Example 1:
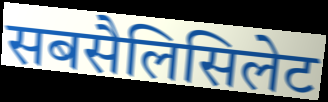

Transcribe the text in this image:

सबसैलिसिलेट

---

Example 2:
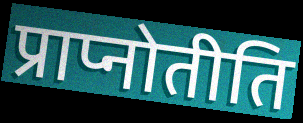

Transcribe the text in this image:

प्राप्नोतीति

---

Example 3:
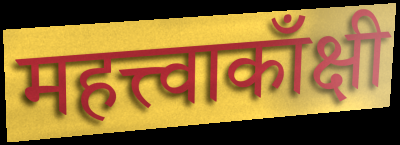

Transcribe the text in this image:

महत्त्वाकाँक्षी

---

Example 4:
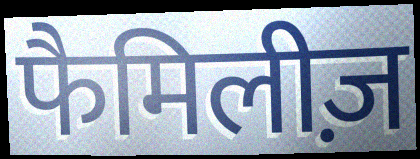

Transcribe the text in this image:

फैमिलीज़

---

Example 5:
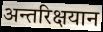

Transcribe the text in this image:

अन्तरिक्षयान